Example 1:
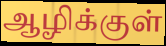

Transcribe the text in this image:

ஆழிக்குள்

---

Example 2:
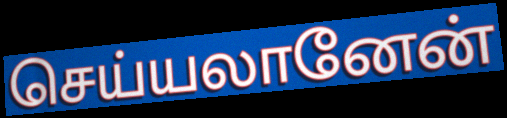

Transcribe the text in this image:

செய்யலானேன்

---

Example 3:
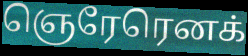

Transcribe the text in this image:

ஞெரேரெனக்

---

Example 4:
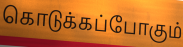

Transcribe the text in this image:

கொடுக்கப்போகும்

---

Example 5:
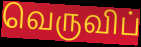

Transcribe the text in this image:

வெருவிப்